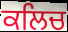
ਕਲਿਚ